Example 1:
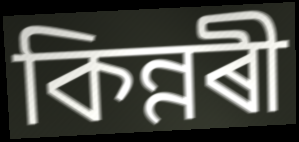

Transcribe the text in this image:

কিন্নৰী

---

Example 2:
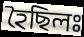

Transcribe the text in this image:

হৈছিলঃ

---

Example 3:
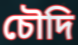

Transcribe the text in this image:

চৌদি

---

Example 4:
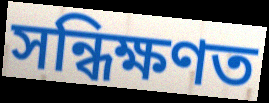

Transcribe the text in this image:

সন্ধিক্ষণত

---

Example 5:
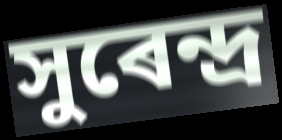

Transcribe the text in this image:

সুৰেন্দ্ৰ